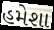
હમેશા